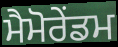
ਮੈਮੋਰੇਂਡਮ